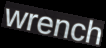
wrench